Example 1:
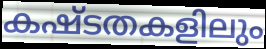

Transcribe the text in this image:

കഷ്ടതകളിലും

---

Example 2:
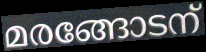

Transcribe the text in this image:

മരങ്ങോടന്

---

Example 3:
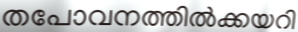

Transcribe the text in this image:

തപോവനത്തിൽക്കയറി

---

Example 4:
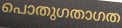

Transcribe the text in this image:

പൊതുഗതാഗത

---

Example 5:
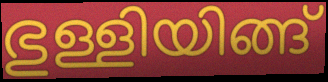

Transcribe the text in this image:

ഭുള്ളിയിങ്ങ്